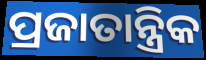
ପ୍ରଜାତାନ୍ତ୍ରିକ